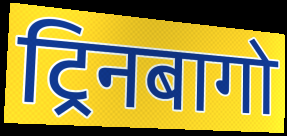
ट्रिनबागो